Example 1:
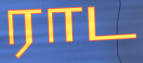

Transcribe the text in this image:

ராட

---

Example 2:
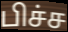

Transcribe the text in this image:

பிச்ச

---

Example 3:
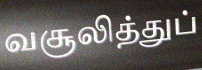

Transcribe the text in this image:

வசூலித்துப்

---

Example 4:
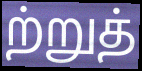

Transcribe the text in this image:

ற்றுத்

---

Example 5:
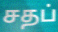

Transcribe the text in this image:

சதப்